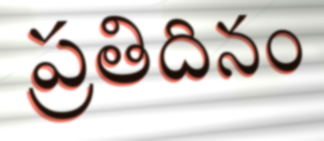
ప్రతిదినం